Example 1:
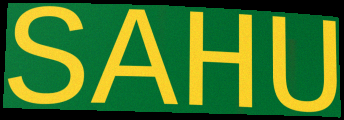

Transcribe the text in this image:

SAHU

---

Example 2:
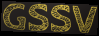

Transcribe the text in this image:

GSSV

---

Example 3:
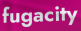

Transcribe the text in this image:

fugacity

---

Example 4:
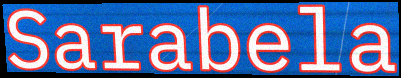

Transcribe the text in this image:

Sarabela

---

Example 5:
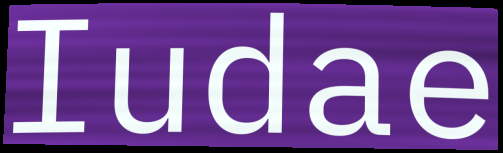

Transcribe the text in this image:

Iudae